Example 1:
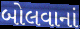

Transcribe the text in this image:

બોલવાનાં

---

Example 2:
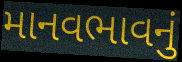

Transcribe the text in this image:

માનવભાવનું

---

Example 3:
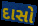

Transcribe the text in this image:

દાસો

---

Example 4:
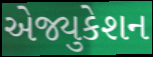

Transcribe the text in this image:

એજ્યુકેશન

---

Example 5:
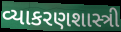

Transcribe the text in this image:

વ્યાકરણશાસ્ત્રી